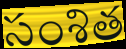
సంశిత